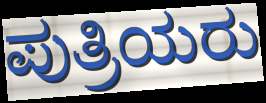
ಪುತ್ರಿಯರು